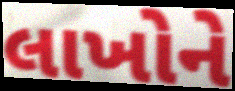
લાખોને